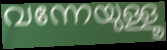
വന്നേയുള്ളൂ